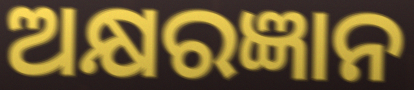
ଅକ୍ଷରଜ୍ଞାନ